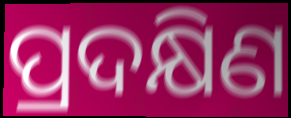
ପ୍ରଦକ୍ଷିଣ